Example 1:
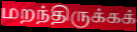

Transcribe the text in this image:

மறந்திருக்கக்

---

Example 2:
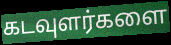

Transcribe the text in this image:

கடவுளர்களை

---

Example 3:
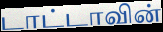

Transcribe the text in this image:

டாட்டாவின்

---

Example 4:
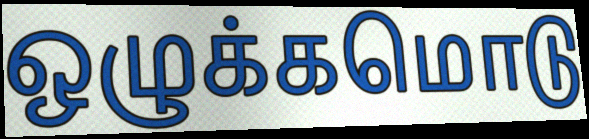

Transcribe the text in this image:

ஒழுக்கமொடு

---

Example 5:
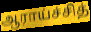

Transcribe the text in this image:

ஆராய்ச்சித்